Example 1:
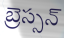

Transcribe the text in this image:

బ్రెస్సన్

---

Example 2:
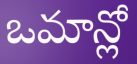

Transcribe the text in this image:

ఒమాన్లో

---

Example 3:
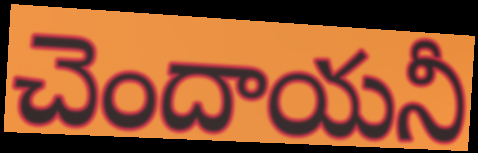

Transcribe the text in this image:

చెందాయనీ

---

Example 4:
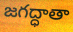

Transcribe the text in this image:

జగద్ధాతా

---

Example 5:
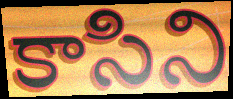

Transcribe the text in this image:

కాసిని